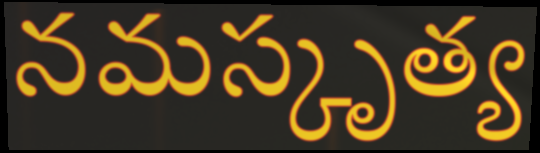
నమస్కృత్య